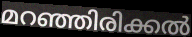
മറഞ്ഞിരിക്കൽ